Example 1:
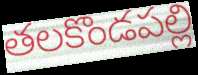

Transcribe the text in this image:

తలకొండపల్లి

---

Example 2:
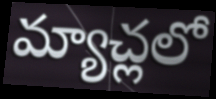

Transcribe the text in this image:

మ్యాచ్లలో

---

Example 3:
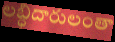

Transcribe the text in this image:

లబ్ధిదారులంతా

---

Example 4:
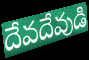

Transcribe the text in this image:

దేవదేవుడి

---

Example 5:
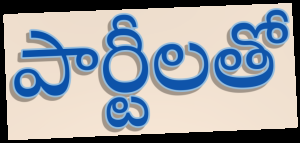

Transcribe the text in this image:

పార్టీలతో